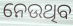
ନେଉଥିବ